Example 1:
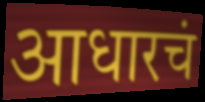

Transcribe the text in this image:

आधारचं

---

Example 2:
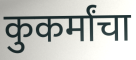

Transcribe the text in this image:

कुकर्मांचा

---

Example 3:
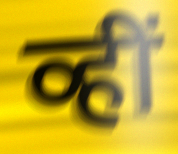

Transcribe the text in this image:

व्हीं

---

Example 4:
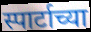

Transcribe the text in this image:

स्पार्टाच्या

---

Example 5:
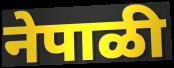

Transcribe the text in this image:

नेपाळी